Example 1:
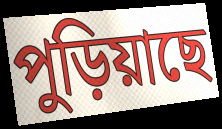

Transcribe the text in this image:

পুড়িয়াছে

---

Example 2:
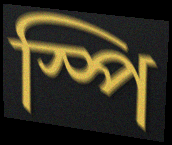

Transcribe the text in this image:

স্পি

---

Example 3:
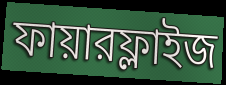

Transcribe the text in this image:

ফায়ারফ্লাইজ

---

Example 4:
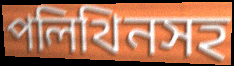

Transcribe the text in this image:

পলিথিনসহ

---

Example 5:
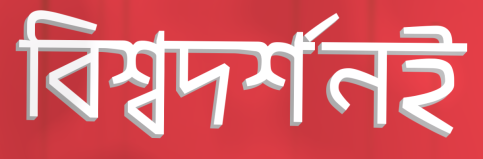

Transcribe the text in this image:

বিশ্বদর্শনই